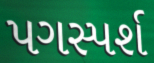
પગસ્પર્શ